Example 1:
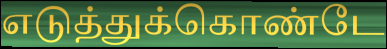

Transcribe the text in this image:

எடுத்துக்கொண்டே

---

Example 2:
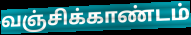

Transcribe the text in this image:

வஞ்சிக்காண்டம்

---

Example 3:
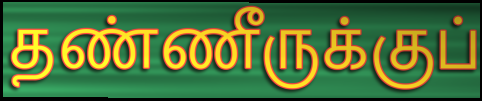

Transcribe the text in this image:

தண்ணீருக்குப்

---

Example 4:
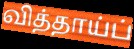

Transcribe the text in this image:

வித்தாய்ப்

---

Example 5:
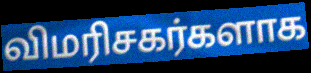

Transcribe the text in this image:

விமரிசகர்களாக